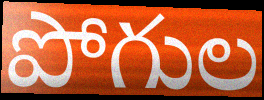
పోగుల